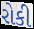
રોકી